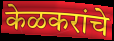
केळकरांचे